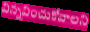
విన్నవించుకోవాలని